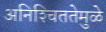
अनिश्चिततेमुळे